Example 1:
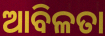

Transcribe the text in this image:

ଆବିଳତା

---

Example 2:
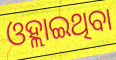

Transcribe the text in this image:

ଓହ୍ଲାଇଥିବା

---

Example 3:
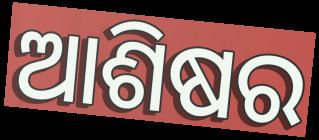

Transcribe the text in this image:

ଆଶିଷର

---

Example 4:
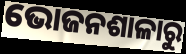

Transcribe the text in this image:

ଭୋଜନଶାଳାରୁ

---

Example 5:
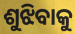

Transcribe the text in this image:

ଶୁଝିବାକୁ